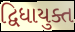
દ્વિધાયુક્ત